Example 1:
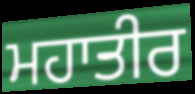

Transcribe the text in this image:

ਮਹਾਤੀਰ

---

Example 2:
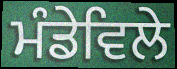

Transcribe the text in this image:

ਮੰਡੇਵਿਲੇ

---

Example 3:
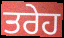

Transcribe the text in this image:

ਤਰੇਹ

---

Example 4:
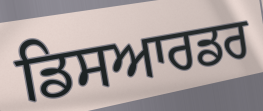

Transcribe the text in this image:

ਡਿਸਆਰਡਰ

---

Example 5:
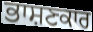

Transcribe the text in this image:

ਭਾਸ਼ਣਕਾਰ